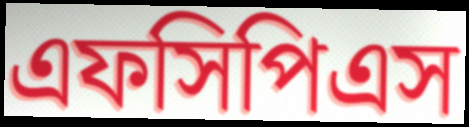
এফসিপিএস